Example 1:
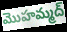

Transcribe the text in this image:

మొహమ్మద్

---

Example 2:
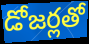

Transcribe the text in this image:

డోజర్లతో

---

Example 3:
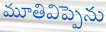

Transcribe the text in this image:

మూతివిప్పెను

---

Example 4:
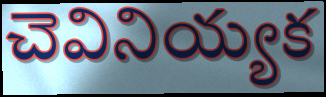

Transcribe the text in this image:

చెవినియ్యక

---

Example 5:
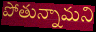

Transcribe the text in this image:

పోతున్నామని